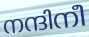
നന്ദിനീ